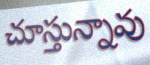
చూస్తున్నావు